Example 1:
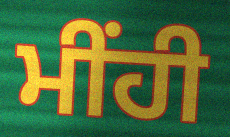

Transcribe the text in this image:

ਮੀਂਹੀ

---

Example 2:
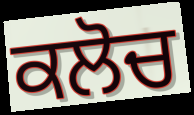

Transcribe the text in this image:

ਕਲੋਚ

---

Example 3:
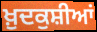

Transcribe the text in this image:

ਖ਼ੁਦਕੁਸ਼ੀਆਂ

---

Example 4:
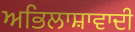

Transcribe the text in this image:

ਅਭਿਲਾਸ਼ਾਵਾਦੀ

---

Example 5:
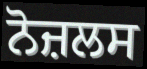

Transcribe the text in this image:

ਨੋਜ਼ਲਸ